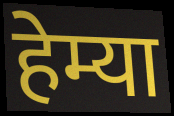
हेम्या